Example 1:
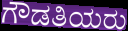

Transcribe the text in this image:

ಗೌಡತಿಯರು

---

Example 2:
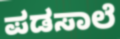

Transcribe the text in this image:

ಪಡಸಾಲೆ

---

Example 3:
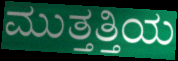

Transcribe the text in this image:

ಮುತ್ತತ್ತಿಯ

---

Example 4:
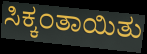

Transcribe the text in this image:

ಸಿಕ್ಕಂತಾಯಿತು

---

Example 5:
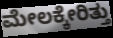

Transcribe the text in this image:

ಮೇಲಕ್ಕೇರಿತ್ತು